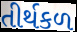
તીર્થકળ